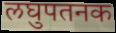
लघुपतनक